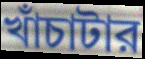
খাঁচাটার